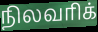
நிலவரிக்